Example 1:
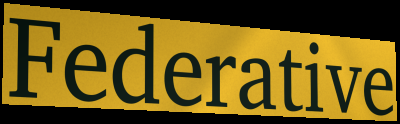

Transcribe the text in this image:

Federative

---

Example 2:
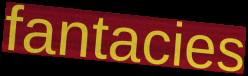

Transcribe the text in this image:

fantacies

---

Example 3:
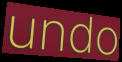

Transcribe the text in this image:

undo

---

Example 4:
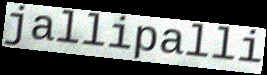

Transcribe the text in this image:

jallipalli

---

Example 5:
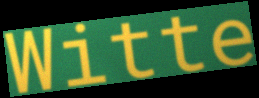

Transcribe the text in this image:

Witte